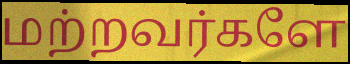
மற்றவர்களே